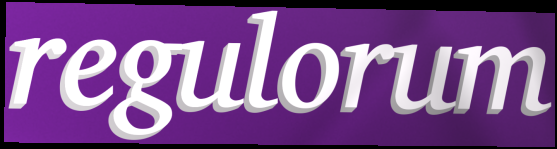
regulorum